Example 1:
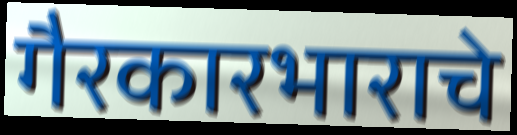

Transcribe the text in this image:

गैरकारभाराचे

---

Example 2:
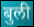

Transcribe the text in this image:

बुली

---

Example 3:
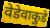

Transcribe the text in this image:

वेडेवाकुडे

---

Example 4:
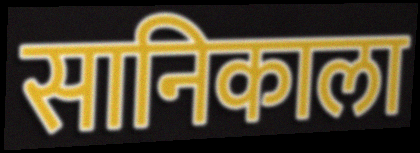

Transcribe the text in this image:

सानिकाला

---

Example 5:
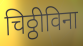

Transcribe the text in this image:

चिठ्ठीविना